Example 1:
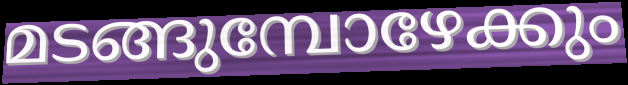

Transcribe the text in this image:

മടങ്ങുമ്പോഴേക്കും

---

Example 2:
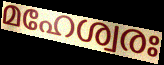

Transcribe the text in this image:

മഹേശ്വരഃ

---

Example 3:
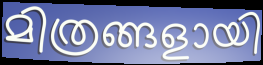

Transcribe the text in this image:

മിത്രങ്ങളായി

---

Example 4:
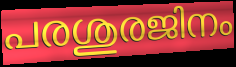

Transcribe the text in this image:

പരശുരജിനം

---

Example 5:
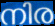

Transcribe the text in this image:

നിര